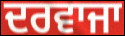
ਦਰਵਾਜਾ